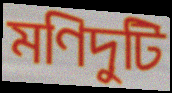
মণিদুটি